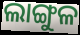
ଲାଙ୍ଗୁଳ